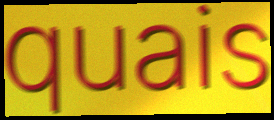
quais